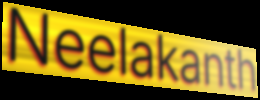
Neelakanth